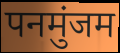
पनमुंजम